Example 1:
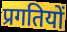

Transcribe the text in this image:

प्रगतियों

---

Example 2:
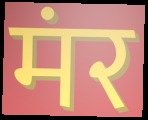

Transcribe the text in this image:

मंर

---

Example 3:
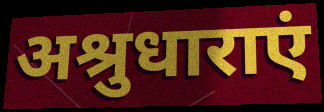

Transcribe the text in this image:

अश्रुधाराएं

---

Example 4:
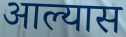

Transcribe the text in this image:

आल्यास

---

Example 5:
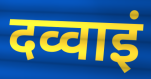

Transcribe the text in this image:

दव्वाइं